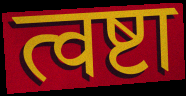
त्वष्टा